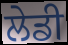
ਲੇਡੀ